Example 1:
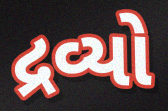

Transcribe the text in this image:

દ્રવ્યો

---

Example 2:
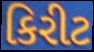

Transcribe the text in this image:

કિરીટ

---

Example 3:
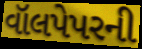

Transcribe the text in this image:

વૉલપેપરની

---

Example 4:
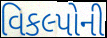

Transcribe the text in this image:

વિકલ્પોની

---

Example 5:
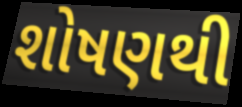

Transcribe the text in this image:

શોષણથી